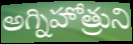
అగ్నిహోత్రుని